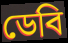
ডেবি